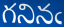
గనినఁ